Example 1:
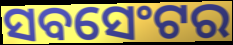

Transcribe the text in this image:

ସବସେଂଟର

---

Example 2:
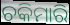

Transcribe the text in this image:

ଚକିମାରି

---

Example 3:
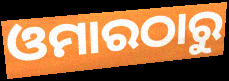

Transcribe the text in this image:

ଓମାରଠାରୁ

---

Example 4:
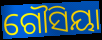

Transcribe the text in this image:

ଗୌସିୟା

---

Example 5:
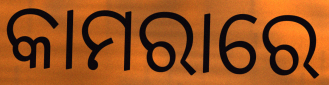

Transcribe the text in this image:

କାମରାରେ